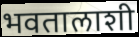
भवतालाशी